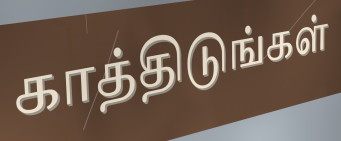
காத்திடுங்கள்